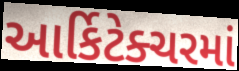
આર્કિટેક્ચરમાં